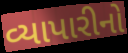
વ્યાપારીનો